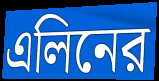
এলিনের